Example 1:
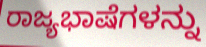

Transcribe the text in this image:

ರಾಜ್ಯಭಾಷೆಗಳನ್ನು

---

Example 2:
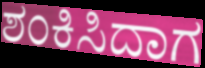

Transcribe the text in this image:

ಶಂಕಿಸಿದಾಗ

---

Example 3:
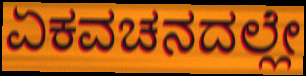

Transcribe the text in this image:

ಏಕವಚನದಲ್ಲೇ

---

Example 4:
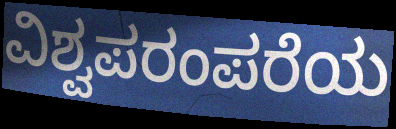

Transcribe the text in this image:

ವಿಶ್ವಪರಂಪರೆಯ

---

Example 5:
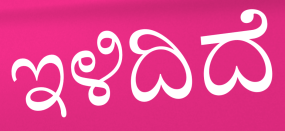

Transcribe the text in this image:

ಇಳಿದಿದೆ